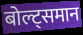
बोल्ट्समान